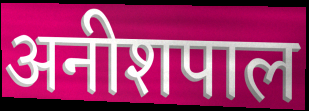
अनीशपाल